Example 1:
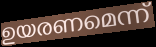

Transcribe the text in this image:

ഉയരണമെന്ന്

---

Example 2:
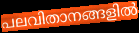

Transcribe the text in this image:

പലവിതാനങ്ങളിൽ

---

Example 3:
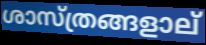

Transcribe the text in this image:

ശാസ്ത്രങ്ങളാല്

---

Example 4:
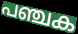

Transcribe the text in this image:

പഞ്ചക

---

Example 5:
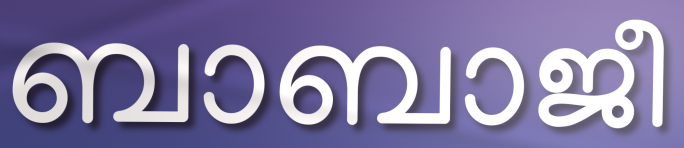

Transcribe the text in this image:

ബാബാജീ